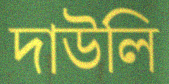
দাউলি